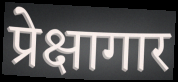
प्रेक्षागार